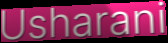
Usharani